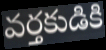
వర్తకుడికి